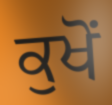
ਕੁਖੋਂ